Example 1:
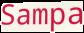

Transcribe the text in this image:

Sampa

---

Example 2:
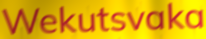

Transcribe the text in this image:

Wekutsvaka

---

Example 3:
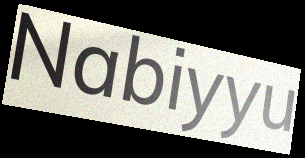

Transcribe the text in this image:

Nabiyyu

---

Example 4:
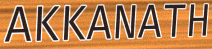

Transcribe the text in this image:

AKKANATH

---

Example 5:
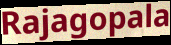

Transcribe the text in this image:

Rajagopala